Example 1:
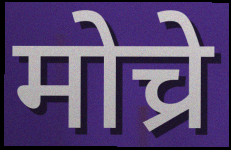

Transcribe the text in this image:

मोच्रे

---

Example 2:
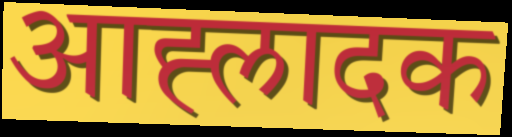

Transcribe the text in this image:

आह्लादक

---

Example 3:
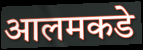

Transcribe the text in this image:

आलमकडे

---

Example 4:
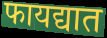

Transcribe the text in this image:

फायद्यात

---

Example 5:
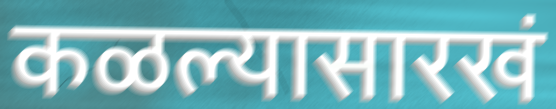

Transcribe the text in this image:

कळल्यासारखं